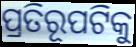
ପ୍ରତିରୂପଟିକୁ